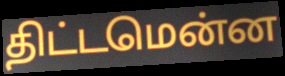
திட்டமென்ன